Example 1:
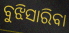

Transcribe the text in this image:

ବୁଝିସାରିବା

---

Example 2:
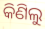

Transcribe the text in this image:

କିଣିଲୁ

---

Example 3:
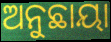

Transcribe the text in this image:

ଅନୁଛାୟା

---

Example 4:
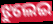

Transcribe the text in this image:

ଝୁଲେଇ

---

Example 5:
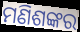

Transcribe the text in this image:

ମଣିଶଙ୍କର